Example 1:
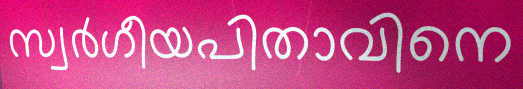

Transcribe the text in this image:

സ്വർഗീയപിതാവിനെ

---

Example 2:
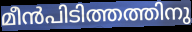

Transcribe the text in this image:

മീൻപിടിത്തത്തിനു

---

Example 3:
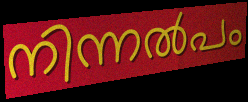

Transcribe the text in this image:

നിന്നൽപം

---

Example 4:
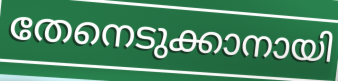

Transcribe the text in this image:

തേനെടുക്കാനായി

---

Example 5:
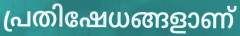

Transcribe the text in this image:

പ്രതിഷേധങ്ങളാണ്